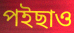
পইছাও